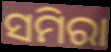
ସମିରା